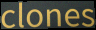
clones